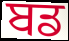
ਬਡ